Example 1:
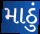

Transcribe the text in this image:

માઠું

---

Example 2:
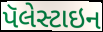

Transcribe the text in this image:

પૅલેસ્ટાઇન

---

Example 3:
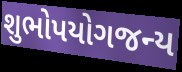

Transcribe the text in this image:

શુભોપયોગજન્ય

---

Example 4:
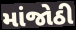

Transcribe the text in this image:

માંજોઠી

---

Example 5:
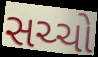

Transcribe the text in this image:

સચ્ચો